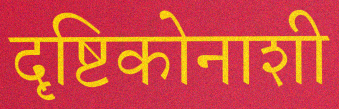
दृष्टिकोनाशी